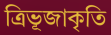
ত্রিভূজাকৃতি